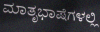
ಮಾತೃಭಾಷೆಗಳಲ್ಲಿ